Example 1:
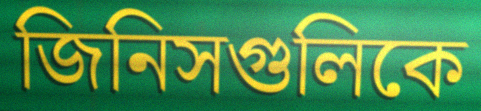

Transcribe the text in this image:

জিনিসগুলিকে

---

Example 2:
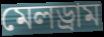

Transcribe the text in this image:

মেলড্রাম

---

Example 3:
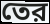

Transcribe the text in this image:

তের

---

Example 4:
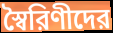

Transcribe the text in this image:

স্বৈরিণীদের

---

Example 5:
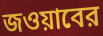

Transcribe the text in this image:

জওয়াবের